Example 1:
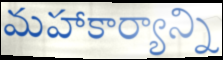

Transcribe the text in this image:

మహాకార్యాన్ని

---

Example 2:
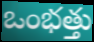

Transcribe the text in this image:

ఒంభత్తు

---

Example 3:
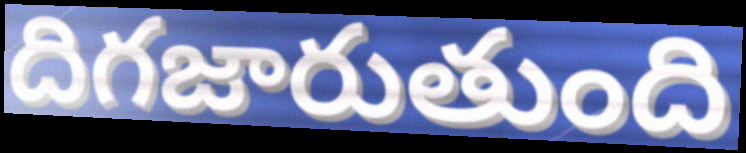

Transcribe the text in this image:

దిగజారుతుంది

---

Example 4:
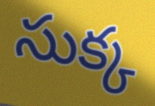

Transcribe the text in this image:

సుక్క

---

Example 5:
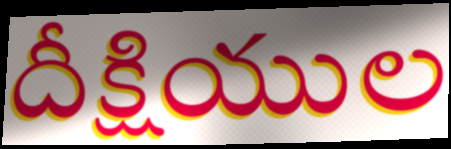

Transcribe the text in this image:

దీక్షియుల